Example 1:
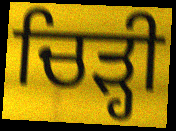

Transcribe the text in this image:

ਚਿੜ੍ਹੀ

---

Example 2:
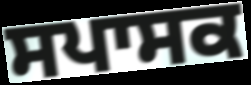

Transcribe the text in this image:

ਸਪਾਸਕ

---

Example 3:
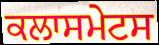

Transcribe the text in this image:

ਕਲਾਸਮੇਟਸ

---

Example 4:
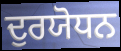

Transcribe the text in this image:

ਦੁਰਯੋਧਨ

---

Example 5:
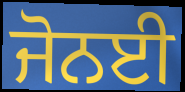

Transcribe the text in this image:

ਜੋਨਈ